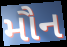
મૌન